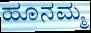
ಹೂನಮ್ಮ